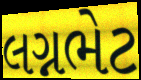
લગ્નભેટ